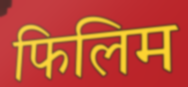
फिलिम